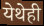
येथेही